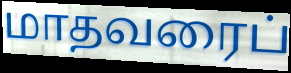
மாதவரைப்